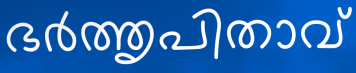
ഭർത്തൃപിതാവ്